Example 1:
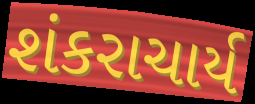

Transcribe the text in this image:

શંકરાચાર્ય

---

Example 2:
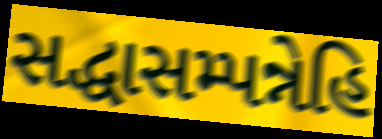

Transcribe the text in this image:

સદ્ધાસમ્પન્નેહિ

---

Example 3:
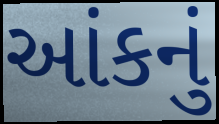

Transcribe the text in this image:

આંકનું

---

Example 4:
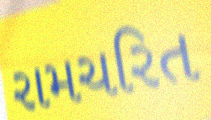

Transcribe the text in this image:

રામચરિત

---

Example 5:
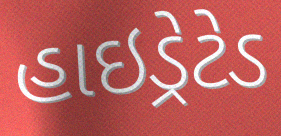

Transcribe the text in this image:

હાઇડ્રેટેડ